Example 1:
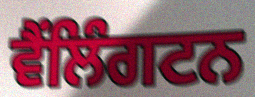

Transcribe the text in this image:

ਵੈਂਲਿੰਗਟਨ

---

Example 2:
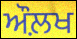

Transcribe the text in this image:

ਔਲ਼ਖ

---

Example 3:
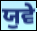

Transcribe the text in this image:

ਯੁਵੇ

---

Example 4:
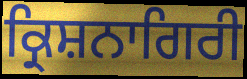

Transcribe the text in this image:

ਕ੍ਰਿਸ਼ਨਾਗਿਰੀ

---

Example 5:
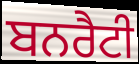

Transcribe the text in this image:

ਬਨਰੈਟੀ